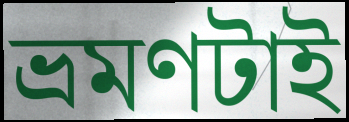
ভ্রমণটাই